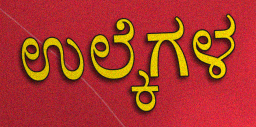
ಉಲ್ಕೆಗಳ